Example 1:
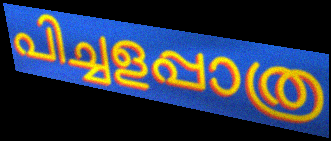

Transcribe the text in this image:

പിച്ചളപ്പാത്ര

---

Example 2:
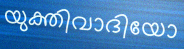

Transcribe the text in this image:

യുക്തിവാദിയോ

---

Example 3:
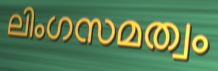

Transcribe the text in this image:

ലിംഗസമത്വം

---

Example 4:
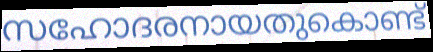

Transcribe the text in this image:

സഹോദരനായതുകൊണ്ട്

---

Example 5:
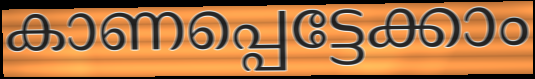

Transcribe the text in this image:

കാണപ്പെട്ടേക്കാം